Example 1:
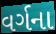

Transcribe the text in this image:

વર્ગના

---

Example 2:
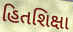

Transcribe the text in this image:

હિતશિક્ષા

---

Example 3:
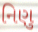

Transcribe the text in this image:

નિણુ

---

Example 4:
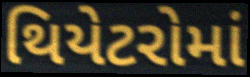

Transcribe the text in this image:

થિયેટરોમાં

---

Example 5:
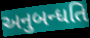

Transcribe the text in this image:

અનુબન્ધતિ